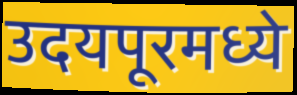
उदयपूरमध्ये